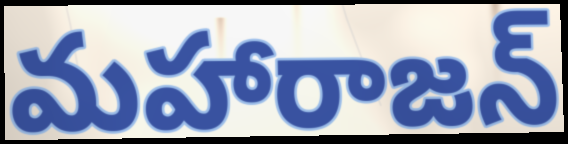
మహారాజన్